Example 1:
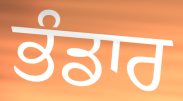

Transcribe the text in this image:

ਭੰਡਾਰ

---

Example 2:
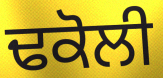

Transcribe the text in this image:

ਢਕੋਲੀ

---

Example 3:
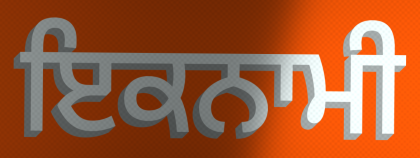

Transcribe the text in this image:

ਇਕਨਾਮੀ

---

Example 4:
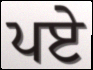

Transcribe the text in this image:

ਪਏ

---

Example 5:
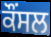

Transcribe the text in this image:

ਕੌਂਸਲ